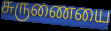
சுருணையை